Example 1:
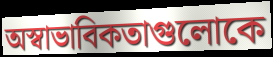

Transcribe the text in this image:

অস্বাভাবিকতাগুলোকে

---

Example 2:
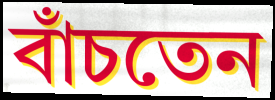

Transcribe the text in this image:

বাঁচতেন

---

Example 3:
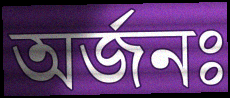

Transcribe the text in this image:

অর্জনঃ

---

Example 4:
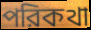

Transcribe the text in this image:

পরিকথা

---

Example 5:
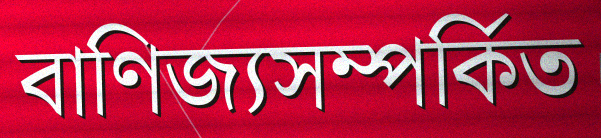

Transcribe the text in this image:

বাণিজ্যসম্পর্কিত